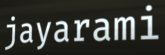
jayarami